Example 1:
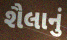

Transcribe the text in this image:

શૈલાનું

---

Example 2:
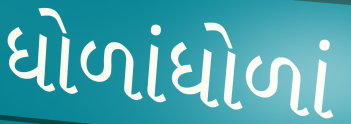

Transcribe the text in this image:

ધોળાંધોળાં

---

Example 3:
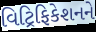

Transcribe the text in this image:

વિટ્રિફિકેશનને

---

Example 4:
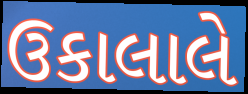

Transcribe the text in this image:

ઉકાલાલે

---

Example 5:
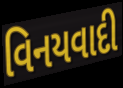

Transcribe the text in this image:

વિનયવાદી